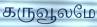
கருவூலமே